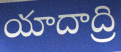
యాదాద్రి